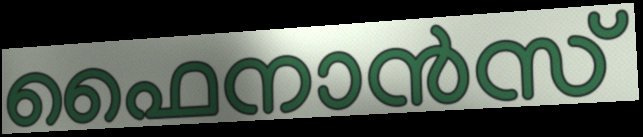
ഫൈനാൻസ്